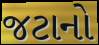
જટાનો